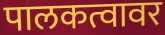
पालकत्वावर